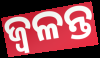
ଜ୍ବଳନ୍ତ